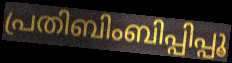
പ്രതിബിംബിപ്പിപ്പൂ